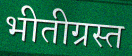
भीतीग्रस्त